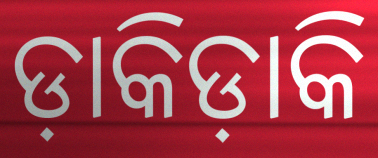
ଡ଼ାକିଡ଼ାକି